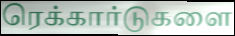
ரெக்கார்டுகளை